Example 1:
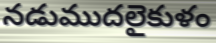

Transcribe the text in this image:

నడుముదలైకుళం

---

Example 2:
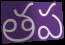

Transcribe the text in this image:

తప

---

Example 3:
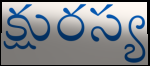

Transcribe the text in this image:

క్షురస్య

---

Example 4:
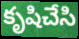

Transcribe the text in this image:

కృషిచేసి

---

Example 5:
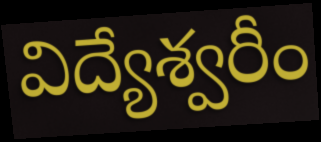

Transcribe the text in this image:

విద్యేశ్వరీం